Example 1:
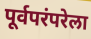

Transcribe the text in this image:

पूर्वपरंपरेला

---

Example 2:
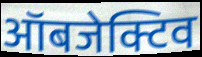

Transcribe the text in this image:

ऑबजेक्टिव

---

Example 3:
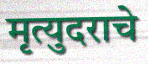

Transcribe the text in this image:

मृत्युदराचे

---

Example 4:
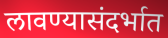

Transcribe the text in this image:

लावण्यासंदर्भात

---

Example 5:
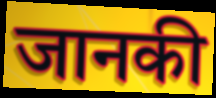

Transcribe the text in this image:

जानकी